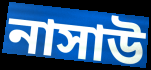
নাসাউ